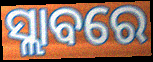
ସ୍ଲାବରେ